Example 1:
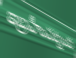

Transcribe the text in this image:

ఇబ్రహీంపట్నంకు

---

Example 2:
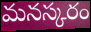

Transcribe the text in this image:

మనస్కరం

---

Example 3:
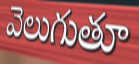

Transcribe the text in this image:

వెలుగుతూ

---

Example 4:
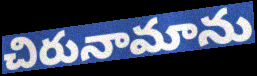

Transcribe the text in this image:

చిరునామాను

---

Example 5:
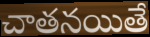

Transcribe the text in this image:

చాతనయితే